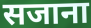
सजाना